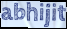
abhijit